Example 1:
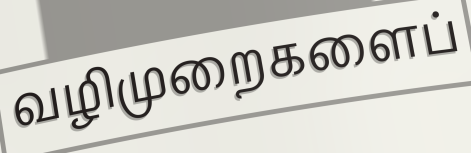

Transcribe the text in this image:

வழிமுறைகளைப்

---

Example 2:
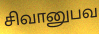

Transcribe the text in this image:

சிவானுபவ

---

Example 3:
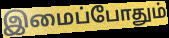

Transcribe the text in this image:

இமைப்போதும்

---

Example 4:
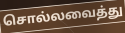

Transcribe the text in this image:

சொல்லவைத்து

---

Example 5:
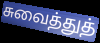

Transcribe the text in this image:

சுவைத்துத்